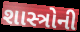
શાસ્ત્રોની